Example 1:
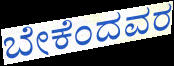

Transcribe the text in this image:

ಬೇಕೆಂದವರ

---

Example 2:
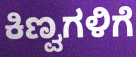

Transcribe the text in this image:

ಕಿಣ್ವಗಳಿಗೆ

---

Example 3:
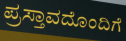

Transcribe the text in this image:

ಪ್ರಸ್ತಾವದೊಂದಿಗೆ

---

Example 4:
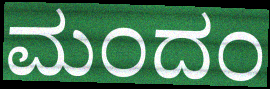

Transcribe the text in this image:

ಮಂದಂ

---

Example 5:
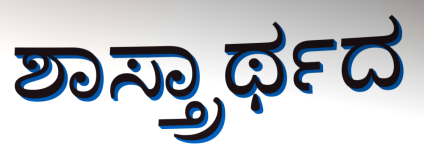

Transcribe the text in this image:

ಶಾಸ್ತ್ರಾರ್ಥದ